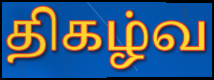
திகழ்வ